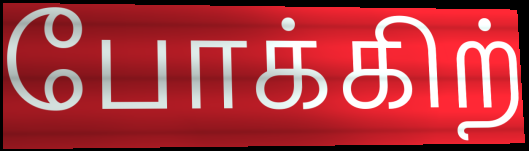
போக்கிற்